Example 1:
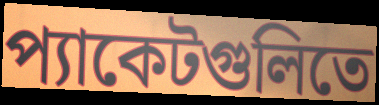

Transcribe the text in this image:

প্যাকেটগুলিতে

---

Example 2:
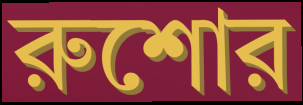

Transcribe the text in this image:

রুশোর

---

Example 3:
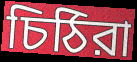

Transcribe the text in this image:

চিঠিরা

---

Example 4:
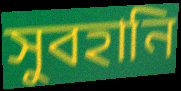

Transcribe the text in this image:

সুবহানি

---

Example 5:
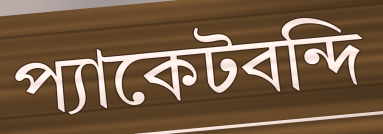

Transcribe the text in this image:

প্যাকেটবন্দি